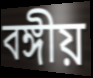
বঙ্গীয়